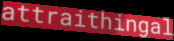
attraithingal